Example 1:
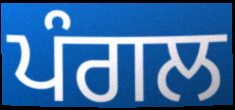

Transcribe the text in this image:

ਪੰਗਲ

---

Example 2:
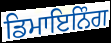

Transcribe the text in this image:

ਡਿਮਾਇਨਿੰਗ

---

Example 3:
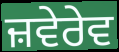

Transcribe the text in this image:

ਜ਼ਵੇਰੇਵ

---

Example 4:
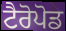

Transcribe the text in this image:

ਟੈਰੋਪੋਡ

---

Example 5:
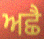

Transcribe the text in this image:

ਅਛੈ